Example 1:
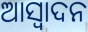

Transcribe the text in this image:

ଆସ୍ୱାଦନ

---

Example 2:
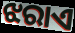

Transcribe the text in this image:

ଝରାଏ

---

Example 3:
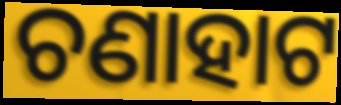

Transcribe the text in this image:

ଚଣାହାଟ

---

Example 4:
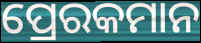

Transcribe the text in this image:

ପ୍ରେରକମାନ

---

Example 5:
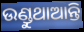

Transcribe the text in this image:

ଉଣ୍ଡୁଥାଆନ୍ତି